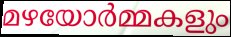
മഴയോർമ്മകളും